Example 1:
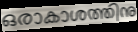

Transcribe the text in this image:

ഒരാകാശത്തിനു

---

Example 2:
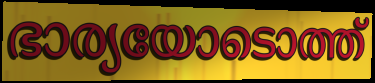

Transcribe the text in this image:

ഭാര്യയോടൊത്ത്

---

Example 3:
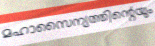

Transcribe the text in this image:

മഹാസൈന്യത്തിന്റെയും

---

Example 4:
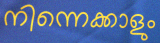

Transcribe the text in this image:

നിന്നെക്കാളും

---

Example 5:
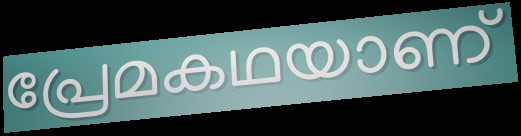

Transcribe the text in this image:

പ്രേമകഥയാണ്